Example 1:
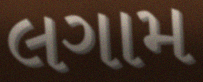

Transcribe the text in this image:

લગામ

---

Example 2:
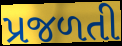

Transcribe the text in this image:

પ્રજળતી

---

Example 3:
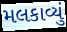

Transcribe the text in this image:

મલકાવ્યું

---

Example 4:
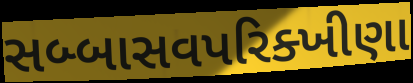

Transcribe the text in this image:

સબ્બાસવપરિક્ખીણા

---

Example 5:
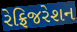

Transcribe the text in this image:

રેફ્રિજરેશન